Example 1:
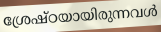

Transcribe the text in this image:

ശ്രേഷ്ഠയായിരുന്നവൾ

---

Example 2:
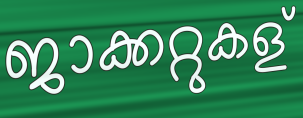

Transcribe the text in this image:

ജാക്കറ്റുകള്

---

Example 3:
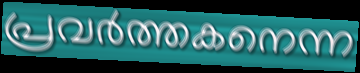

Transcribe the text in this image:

പ്രവർത്തകനെന്ന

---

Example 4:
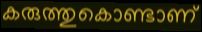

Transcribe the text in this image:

കരുത്തുകൊണ്ടാണ്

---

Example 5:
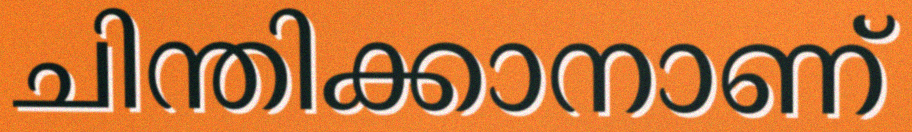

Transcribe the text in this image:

ചിന്തിക്കാനാണ്